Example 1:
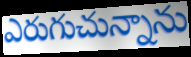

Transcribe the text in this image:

ఎరుగుచున్నాను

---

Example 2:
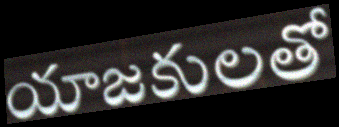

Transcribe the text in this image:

యాజకులతో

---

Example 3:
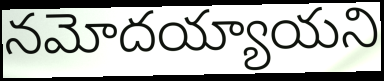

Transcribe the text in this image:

నమోదయ్యాయని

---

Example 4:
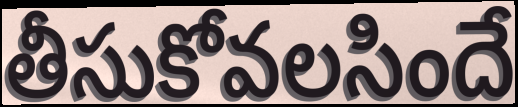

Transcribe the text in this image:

తీసుకోవలసిందే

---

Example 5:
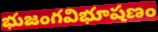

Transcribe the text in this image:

భుజంగవిభూషణం